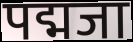
पद्मजा